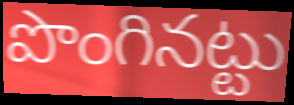
పొంగినట్టు